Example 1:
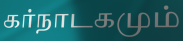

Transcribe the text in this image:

கர்நாடகமும்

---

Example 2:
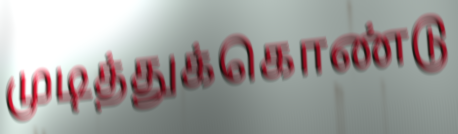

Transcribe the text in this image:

முடித்துக்கொண்டு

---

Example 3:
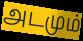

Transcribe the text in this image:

அடமும்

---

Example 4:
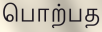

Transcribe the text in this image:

பொற்பத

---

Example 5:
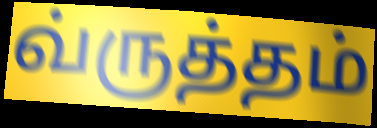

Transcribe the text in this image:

வ்ருத்தம்